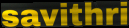
savithri